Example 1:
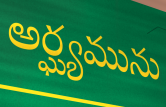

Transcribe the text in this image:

అర్ఘ్యమును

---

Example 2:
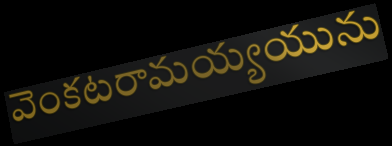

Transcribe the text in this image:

వెంకటరామయ్యయును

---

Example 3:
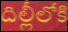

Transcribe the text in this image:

దిల్లీలోకి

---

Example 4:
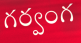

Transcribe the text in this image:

గర్వంగ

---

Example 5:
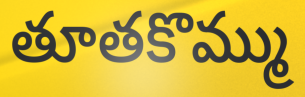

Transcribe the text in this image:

తూతకొమ్ము